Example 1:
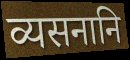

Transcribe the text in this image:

व्यसनानि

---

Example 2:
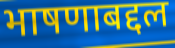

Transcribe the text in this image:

भाषणाबद्दल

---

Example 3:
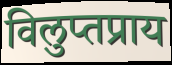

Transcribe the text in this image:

विलुप्तप्राय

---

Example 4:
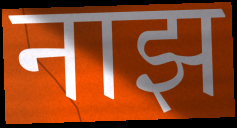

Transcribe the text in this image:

नाझ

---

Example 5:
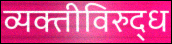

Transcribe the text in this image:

व्यक्तीविरुद्ध